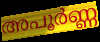
അപൂർണ്ണ